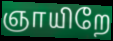
ஞாயிறே